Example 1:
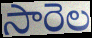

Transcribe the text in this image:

సారెల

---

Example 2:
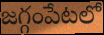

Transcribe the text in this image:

జగ్గంపేటలో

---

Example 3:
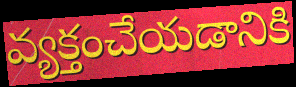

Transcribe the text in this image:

వ్యక్తంచేయడానికి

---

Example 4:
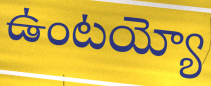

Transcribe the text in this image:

ఉంటయ్యో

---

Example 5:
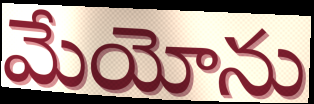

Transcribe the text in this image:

మేయోను